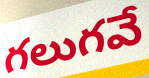
గలుగవే